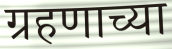
ग्रहणाच्या